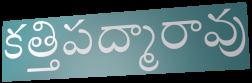
కత్తిపద్మారావు